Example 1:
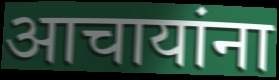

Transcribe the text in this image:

आचायांना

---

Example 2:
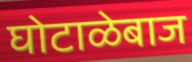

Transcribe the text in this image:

घोटाळेबाज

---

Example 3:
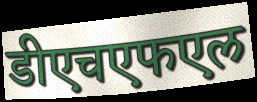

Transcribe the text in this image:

डीएचएफएल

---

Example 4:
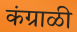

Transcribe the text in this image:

कंग्राळी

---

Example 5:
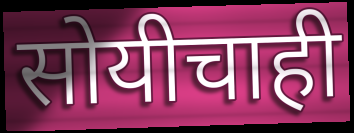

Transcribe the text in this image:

सोयीचाही